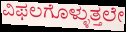
ವಿಫಲಗೊಳ್ಳುತ್ತಲೇ